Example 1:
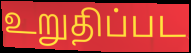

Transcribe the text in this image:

உறுதிப்பட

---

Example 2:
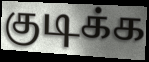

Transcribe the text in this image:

குடிக்க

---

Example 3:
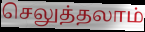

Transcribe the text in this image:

செலுத்தலாம்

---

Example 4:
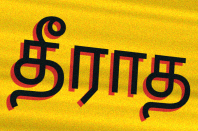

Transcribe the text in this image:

தீராத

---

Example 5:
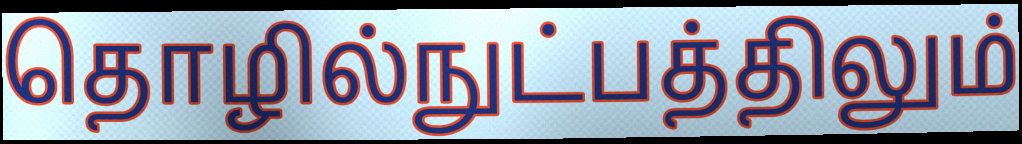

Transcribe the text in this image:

தொழில்நுட்பத்திலும்